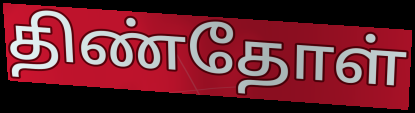
திண்தோள்